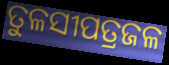
ତୁଳସୀପତ୍ରଜଳ